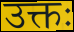
उक्तः